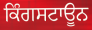
ਕਿੰਗਸਟਾਊਨ